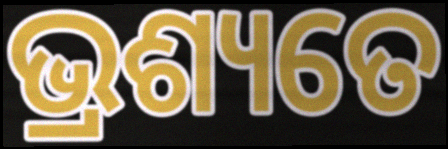
ଭ୍ରଶ୍ୟତେ